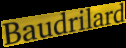
Baudrilard